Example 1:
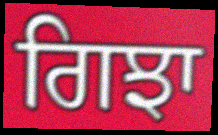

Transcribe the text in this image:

ਗਿਝਾ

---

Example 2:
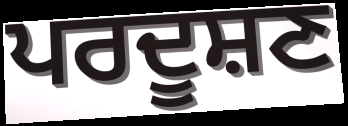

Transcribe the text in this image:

ਪਰਦੂਸ਼ਣ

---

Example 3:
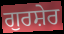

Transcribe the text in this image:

ਗੁਰਸ਼ੇਰ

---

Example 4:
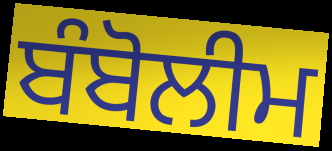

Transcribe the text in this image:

ਬੰਬੋਲੀਮ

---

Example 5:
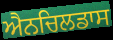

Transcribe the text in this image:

ਐਨਚਿਲਡਾਸ